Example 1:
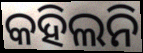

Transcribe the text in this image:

କହିଲନି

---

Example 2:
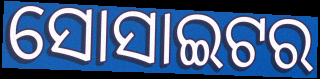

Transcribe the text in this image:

ସୋସାଇଟର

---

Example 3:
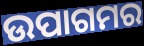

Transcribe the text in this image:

ଉପାଗମର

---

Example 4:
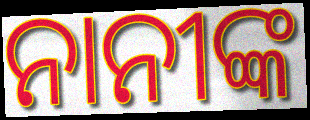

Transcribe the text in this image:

ନାନୀଙ୍କ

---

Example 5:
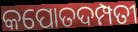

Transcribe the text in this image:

କପୋତଦମ୍ପତୀ